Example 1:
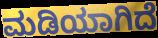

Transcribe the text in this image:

ಮಡಿಯಾಗಿದೆ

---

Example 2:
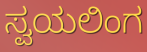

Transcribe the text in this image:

ಸ್ವಯಲಿಂಗ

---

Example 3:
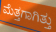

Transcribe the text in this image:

ಮೆತ್ತಗಾಗಿತ್ತು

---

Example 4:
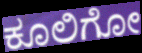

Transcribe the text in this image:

ಕೂಲಿಗೋ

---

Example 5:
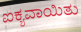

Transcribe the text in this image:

ಐಕ್ಯವಾಯಿತು